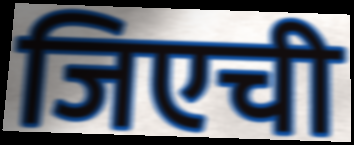
जिएची